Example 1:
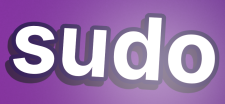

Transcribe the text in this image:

sudo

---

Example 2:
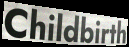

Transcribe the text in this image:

Childbirth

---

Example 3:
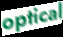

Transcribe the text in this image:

optical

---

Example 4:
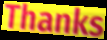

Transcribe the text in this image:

Thanks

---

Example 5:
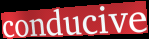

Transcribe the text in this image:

conducive